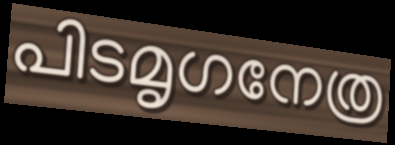
പിടമൃഗനേത്ര